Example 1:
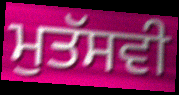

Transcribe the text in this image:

ਮੁਤੱਸਵੀ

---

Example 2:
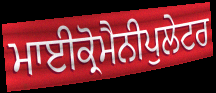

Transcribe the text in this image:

ਮਾਈਕ੍ਰੋਮੈਨੀਪੁਲੇਟਰ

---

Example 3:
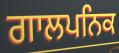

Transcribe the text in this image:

ਗਾਲਪਨਿਕ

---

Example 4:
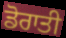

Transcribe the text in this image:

ਡੋਰਾਤੀ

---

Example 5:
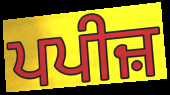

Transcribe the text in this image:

ਪਪੀਜ਼